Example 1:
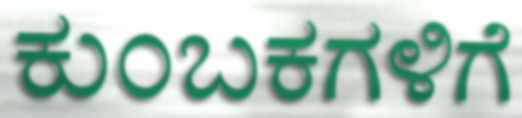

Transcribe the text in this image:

ಕುಂಬಕಗಳಿಗೆ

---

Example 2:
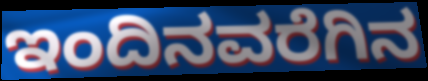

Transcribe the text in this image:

ಇಂದಿನವರೆಗಿನ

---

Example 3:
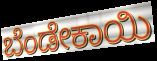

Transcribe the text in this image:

ಬೆಂಡೇಕಾಯಿ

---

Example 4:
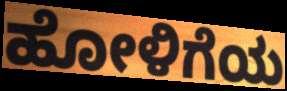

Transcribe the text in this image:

ಹೋಳಿಗೆಯ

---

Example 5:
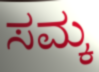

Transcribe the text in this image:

ಸಮ್ಕ